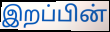
இறப்பின்